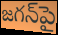
జగన్‌పై